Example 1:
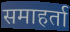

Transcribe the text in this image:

समाहर्ता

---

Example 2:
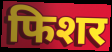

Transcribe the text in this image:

फिशर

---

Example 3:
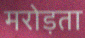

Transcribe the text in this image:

मरोड़ता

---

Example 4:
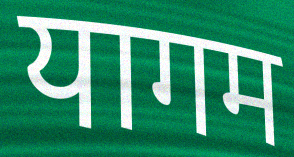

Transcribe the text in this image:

यागम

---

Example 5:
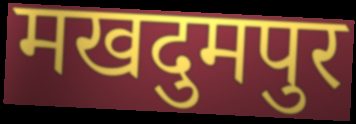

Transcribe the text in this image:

मखदुमपुर